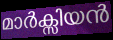
മാർക്സിയൻ